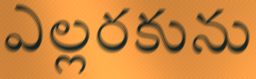
ఎల్లరకును